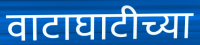
वाटाघाटीच्या